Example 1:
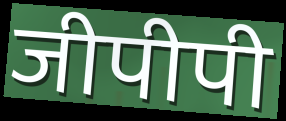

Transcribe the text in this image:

जीपीपी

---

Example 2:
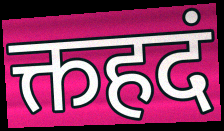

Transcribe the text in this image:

क्तहदं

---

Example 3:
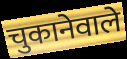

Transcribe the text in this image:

चुकानेवाले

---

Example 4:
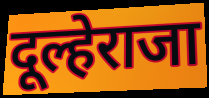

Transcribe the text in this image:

दूल्हेराजा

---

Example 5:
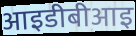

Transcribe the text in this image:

आइडीबीआइ